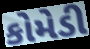
કોમેડી